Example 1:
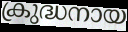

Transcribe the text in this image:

ക്രുദ്ധനായ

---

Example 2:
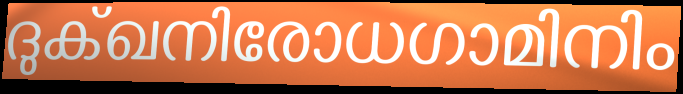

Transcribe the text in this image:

ദുക്ഖനിരോധഗാമിനിം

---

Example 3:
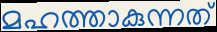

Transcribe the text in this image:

മഹത്താകുന്നത്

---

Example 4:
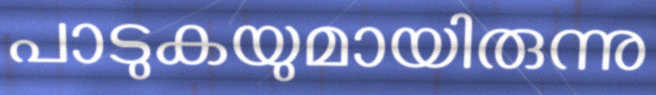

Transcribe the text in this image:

പാടുകയുമായിരുന്നു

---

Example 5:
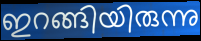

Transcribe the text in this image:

ഇറങ്ങിയിരുന്നു